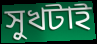
সুখটাই